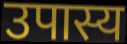
उपास्य